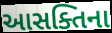
આસક્તિના